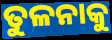
ତୁଳନାକୁ